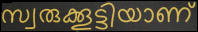
സ്വരുക്കൂട്ടിയാണ്